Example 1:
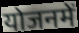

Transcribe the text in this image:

योजनमें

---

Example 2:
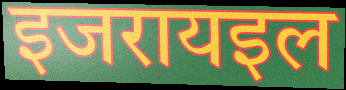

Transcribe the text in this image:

इजरायइल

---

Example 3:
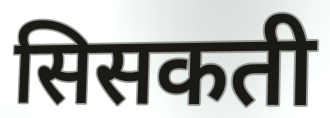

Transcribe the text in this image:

सिसकती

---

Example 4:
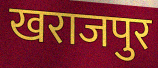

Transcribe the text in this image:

खराजपुर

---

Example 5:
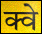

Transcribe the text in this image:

क्वे